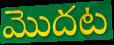
మొదట